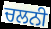
ਚਲਨੀ